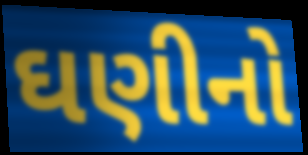
ઘણીનો